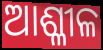
ଆଶ୍ଳୀଳ